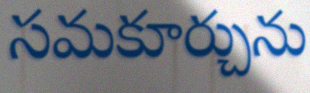
సమకూర్చును